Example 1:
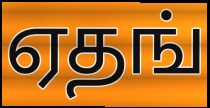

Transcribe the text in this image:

ஏதங்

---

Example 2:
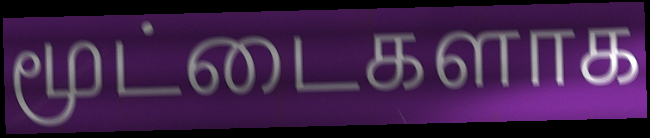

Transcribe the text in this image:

மூட்டைகளாக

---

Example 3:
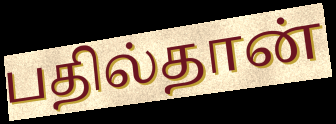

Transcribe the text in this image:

பதில்தான்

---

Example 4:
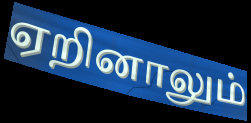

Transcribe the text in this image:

ஏறினாலும்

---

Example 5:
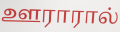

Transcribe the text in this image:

ஊராரால்